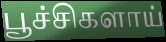
பூச்சிகளாய்